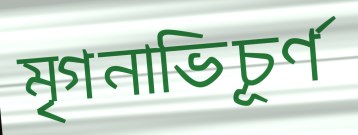
মৃগনাভিচূর্ণ